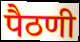
पैठणी